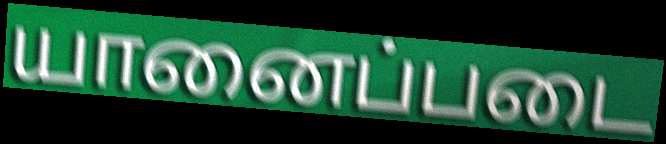
யானைப்படை